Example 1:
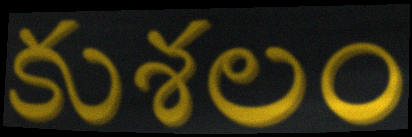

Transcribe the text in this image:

కుశలం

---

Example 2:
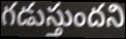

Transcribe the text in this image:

గడుస్తుందని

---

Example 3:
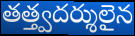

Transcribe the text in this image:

తత్త్వదర్శులైన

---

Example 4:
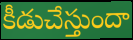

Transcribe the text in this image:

కీడుచేస్తుందా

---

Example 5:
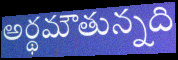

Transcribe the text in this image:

అర్థమౌతున్నది